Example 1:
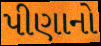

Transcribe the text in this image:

પીણાનો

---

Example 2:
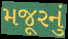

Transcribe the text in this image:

મજૂરનું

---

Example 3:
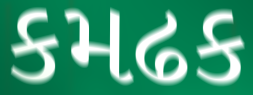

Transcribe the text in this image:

કમઢક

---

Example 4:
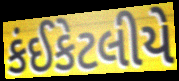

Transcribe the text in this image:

કંઈકેટલીયે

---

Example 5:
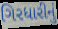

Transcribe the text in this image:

ગિરધારીનું